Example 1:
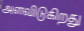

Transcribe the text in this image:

அளவிடுகிறது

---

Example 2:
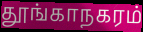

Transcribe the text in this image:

தூங்காநகரம்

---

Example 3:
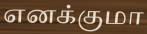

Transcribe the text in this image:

எனக்குமா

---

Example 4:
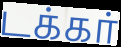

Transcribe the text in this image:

டக்கர்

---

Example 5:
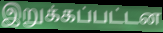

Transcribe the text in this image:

இறுக்கப்பட்டன